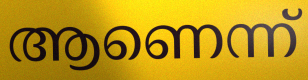
ആണെന്ന്